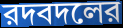
রদবদলের